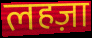
लहज़ा